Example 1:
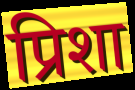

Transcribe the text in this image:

प्रिशा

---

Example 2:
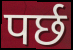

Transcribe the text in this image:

पर्छ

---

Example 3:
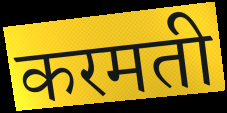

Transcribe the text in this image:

करमती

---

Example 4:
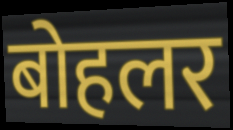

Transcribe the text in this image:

बोहलर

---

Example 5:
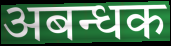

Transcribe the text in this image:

अबन्धक